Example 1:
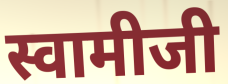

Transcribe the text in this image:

स्वामीजी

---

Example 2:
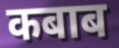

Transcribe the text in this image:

कबाब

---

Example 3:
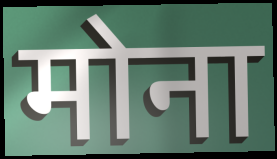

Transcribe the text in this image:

मोना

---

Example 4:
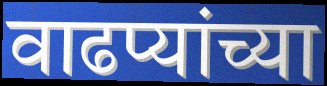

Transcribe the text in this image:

वाढप्यांच्या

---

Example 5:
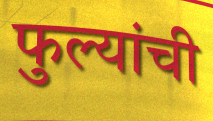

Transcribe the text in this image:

फुल्यांची